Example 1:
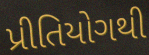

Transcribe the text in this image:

પ્રીતિયોગથી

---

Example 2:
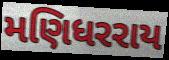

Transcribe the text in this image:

મણિધરરાય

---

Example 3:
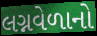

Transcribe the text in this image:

લગ્નવેળાનો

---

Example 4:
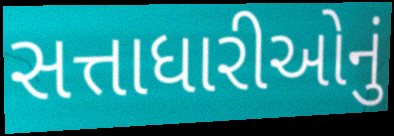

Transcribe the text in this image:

સત્તાધારીઓનું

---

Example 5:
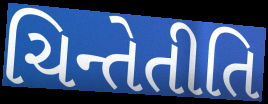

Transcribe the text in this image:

ચિન્તેતીતિ